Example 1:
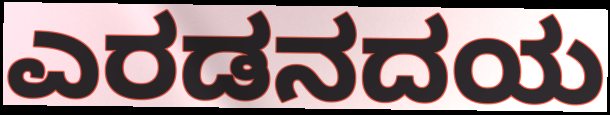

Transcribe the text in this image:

ಎರಡನದಯ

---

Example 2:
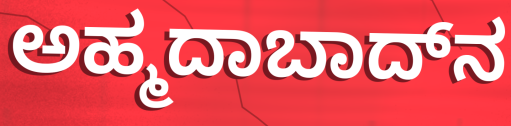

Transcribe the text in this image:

ಅಹ್ಮದಾಬಾದ್‌ನ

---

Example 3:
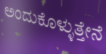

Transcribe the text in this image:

ಅಂದುಕೊಳ್ಳುತ್ತೇನೆ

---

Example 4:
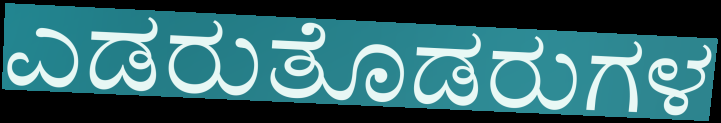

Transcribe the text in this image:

ಎಡರುತೊಡರುಗಳ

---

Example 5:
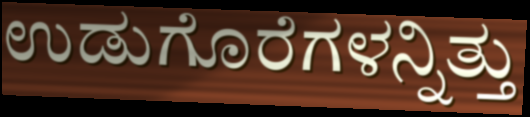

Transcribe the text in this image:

ಉಡುಗೊರೆಗಳನ್ನಿತ್ತು